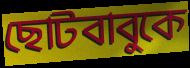
ছোটবাবুকে